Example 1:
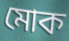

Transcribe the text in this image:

মোক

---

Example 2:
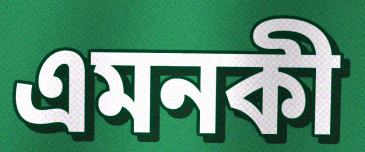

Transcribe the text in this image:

এমনকী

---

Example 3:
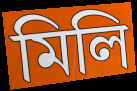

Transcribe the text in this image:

মিলি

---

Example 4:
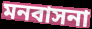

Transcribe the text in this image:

মনবাসনা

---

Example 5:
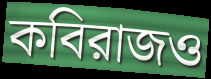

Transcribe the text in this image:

কবিরাজও